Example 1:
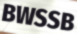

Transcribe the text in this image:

BWSSB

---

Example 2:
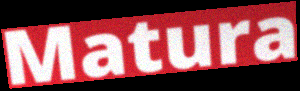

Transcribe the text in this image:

Matura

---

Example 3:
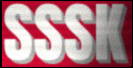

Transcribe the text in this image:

SSSK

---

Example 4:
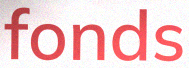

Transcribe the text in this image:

fonds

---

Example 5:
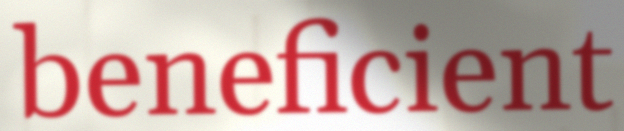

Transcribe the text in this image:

beneficient